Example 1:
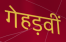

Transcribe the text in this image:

गेहड़वीं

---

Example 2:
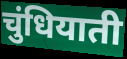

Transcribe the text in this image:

चुंधियाती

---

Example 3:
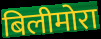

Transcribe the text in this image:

बिलीमोरा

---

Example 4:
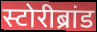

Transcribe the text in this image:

स्टोरीब्रांड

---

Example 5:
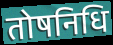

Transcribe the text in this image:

तोषनिधि